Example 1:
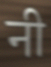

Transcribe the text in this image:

नी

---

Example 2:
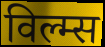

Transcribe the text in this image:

विल्म्स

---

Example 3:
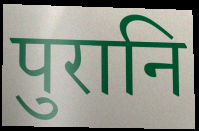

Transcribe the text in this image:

पुरानि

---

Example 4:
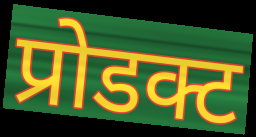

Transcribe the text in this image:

प्रोडक्ट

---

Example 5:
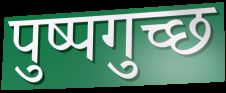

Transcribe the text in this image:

पुष्पगुच्छ